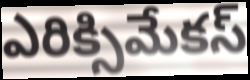
ఎరిక్సిమేకస్